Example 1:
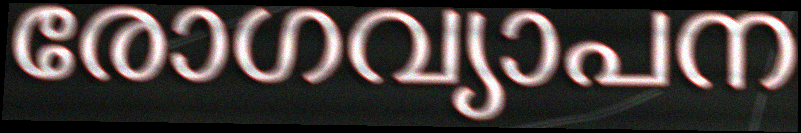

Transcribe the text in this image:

രോഗവ്യാപന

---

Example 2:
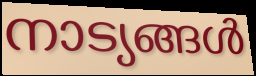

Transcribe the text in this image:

നാട്യങ്ങൾ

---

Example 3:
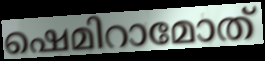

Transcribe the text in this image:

ഷെമിറാമോത്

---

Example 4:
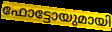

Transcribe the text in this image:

ഫോട്ടോയുമായി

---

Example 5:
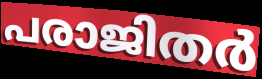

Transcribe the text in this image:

പരാജിതർ